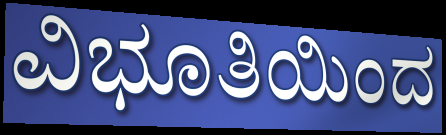
ವಿಭೂತಿಯಿಂದ